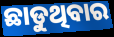
ଛାଡୁଥିବାର